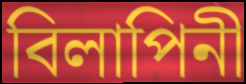
বিলাপিনী